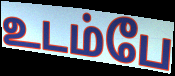
உடம்பே